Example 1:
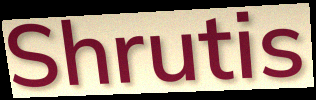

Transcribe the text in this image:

Shrutis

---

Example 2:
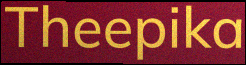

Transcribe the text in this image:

Theepika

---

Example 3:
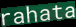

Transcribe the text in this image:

rahata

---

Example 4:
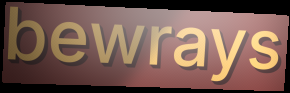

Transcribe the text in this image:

bewrays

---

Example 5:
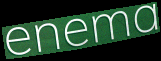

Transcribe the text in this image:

enema